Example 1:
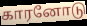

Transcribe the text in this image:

காரனோடு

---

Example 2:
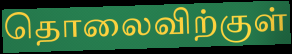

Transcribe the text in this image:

தொலைவிற்குள்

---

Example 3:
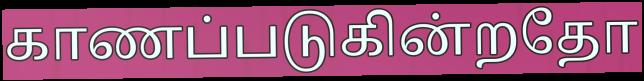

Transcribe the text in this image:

காணப்படுகின்றதோ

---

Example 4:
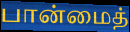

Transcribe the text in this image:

பான்மைத்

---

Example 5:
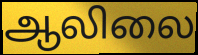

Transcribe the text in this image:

ஆலிலை